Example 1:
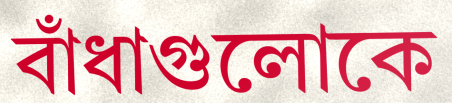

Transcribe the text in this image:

বাঁধাগুলোকে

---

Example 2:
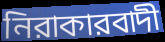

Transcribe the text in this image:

নিরাকারবাদী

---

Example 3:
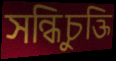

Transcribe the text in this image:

সন্ধিচুক্তি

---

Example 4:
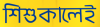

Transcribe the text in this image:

শিশুকালেই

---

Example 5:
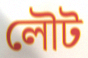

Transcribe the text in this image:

লৌট